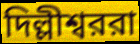
দিল্লীশ্বররা